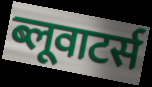
ब्लूवाटर्स